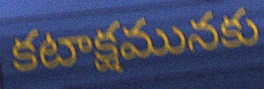
కటాక్షమునకు